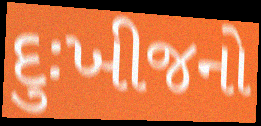
દુઃખીજનો